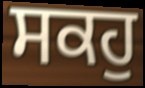
ਸਕਹੁ